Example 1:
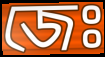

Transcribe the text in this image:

জেঃ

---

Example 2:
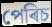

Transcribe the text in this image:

পেৰিচ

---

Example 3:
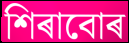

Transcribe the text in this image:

শিৰাবোৰ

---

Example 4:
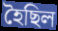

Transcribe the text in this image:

হৈছিল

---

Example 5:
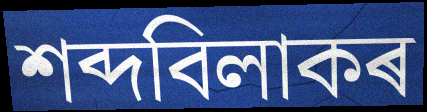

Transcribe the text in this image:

শব্দবিলাকৰ